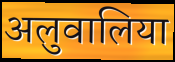
अलुवालिया